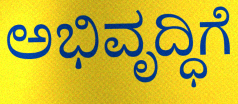
ಅಭಿವೃದ್ಧಿಗೆ